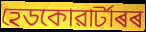
হেডকোৱাৰ্টাৰৰ